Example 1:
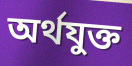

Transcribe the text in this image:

অৰ্থযুক্ত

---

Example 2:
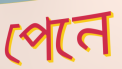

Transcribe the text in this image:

পেনে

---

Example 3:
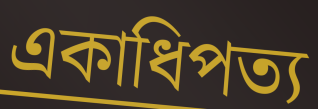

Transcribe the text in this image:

একাধিপত্য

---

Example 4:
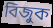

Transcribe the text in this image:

বিজুক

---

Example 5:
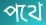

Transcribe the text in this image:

পথে